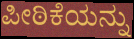
ಪೀಠಿಕೆಯನ್ನು